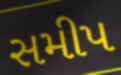
સમીપ